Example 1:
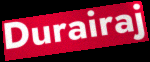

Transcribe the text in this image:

Durairaj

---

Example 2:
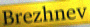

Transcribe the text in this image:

Brezhnev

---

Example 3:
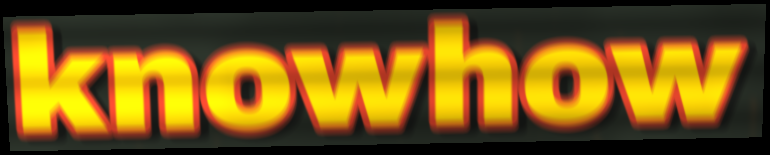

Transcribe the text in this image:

knowhow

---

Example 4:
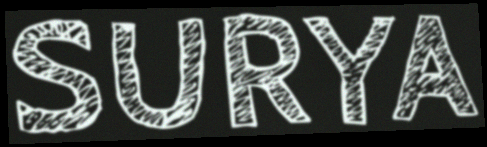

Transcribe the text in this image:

SURYA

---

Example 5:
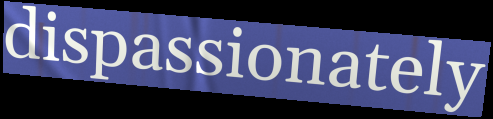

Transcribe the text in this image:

dispassionately